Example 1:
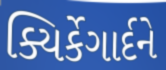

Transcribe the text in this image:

ક્યિર્કેગાર્દને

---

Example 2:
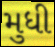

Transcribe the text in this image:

મુધી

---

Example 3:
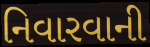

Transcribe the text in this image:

નિવારવાની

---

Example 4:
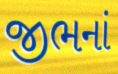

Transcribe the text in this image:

જીભનાં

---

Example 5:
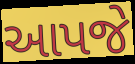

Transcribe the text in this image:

આપજે